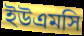
ইউএমসি